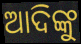
ଆଦିଙ୍କୁ